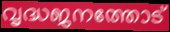
വൃദ്ധജനത്തോട്